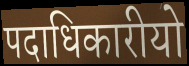
पदाधिकारीयो